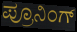
ಪ್ರೂನಿಂಗ್